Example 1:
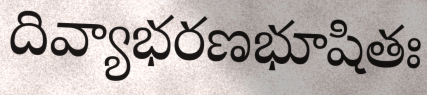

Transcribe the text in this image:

దివ్యాభరణభూషితః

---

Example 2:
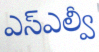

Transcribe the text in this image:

ఎస్ఎల్వీ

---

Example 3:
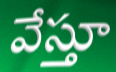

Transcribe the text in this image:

వేస్తూ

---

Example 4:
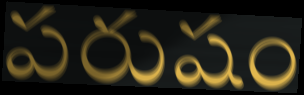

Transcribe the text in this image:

పరుషం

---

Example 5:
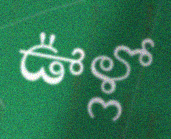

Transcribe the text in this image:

ఊళ్లో